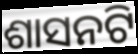
ଶାସନଟି